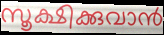
സൂക്ഷിക്കുവാൻ